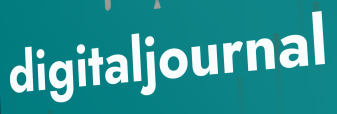
digitaljournal